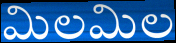
మిలమిల